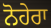
ਨੋਹੇਰਾ